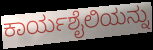
ಕಾರ್ಯಶೈಲಿಯನ್ನು